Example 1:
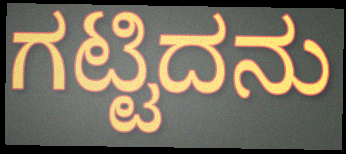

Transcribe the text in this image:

ಗಟ್ಟಿದನು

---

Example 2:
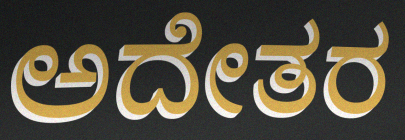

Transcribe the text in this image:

ಅದೇತರ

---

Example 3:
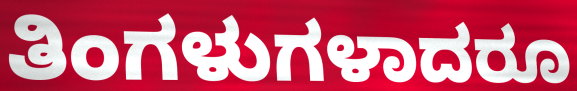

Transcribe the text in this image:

ತಿಂಗಳುಗಳಾದರೂ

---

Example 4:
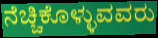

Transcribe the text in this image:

ನೆಚ್ಚಿಕೊಳ್ಳುವವರು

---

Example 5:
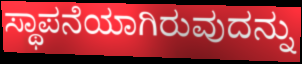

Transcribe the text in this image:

ಸ್ಥಾಪನೆಯಾಗಿರುವುದನ್ನು